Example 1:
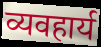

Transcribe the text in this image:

व्यवहार्य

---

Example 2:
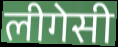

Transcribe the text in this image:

लीगेसी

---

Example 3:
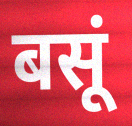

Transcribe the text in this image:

बसूं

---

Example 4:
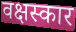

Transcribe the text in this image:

वक्षस्कार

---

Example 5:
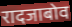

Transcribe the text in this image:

रादजाबोव